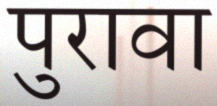
पुरावा